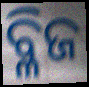
ବ୍ଳିଜ